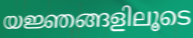
യജ്ഞങ്ങളിലൂടെ